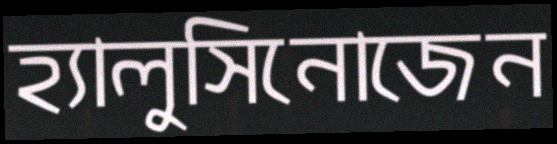
হ্যালুসিনোজেন